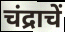
चंद्राचें